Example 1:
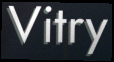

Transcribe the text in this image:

Vitry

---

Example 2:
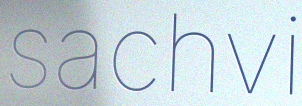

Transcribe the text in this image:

sachvi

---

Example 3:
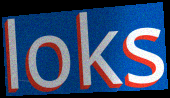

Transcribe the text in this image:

loks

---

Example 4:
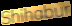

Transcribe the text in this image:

Shihabur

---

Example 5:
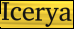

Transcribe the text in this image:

Icerya